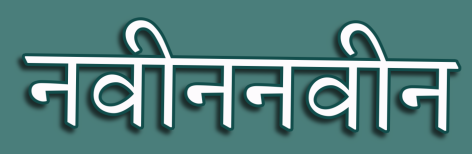
नवीननवीन